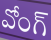
వోంగ్